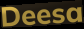
Deesa